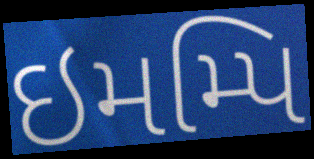
ઇમમ્પિ